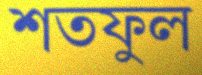
শতফুল